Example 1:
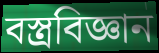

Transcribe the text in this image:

বস্ত্রবিজ্ঞান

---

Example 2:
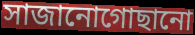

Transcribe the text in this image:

সাজানোগোছানো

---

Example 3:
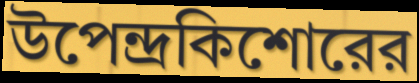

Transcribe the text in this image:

উপেন্দ্রকিশোরের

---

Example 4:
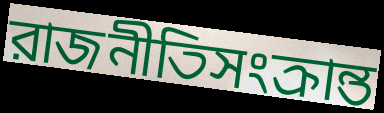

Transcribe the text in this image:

রাজনীতিসংক্রান্ত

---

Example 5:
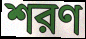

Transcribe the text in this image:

শরণ